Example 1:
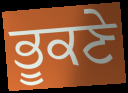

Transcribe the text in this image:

ਭੂਕਣੇ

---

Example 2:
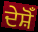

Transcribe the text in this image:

ਦੇਸ਼ੋਁ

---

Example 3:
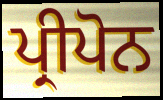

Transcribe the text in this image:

ਪ੍ਰੀਪੋਨ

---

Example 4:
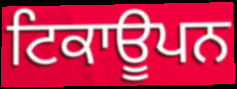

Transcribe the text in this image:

ਟਿਕਾਊਪਨ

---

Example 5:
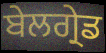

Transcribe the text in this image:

ਬੇਲਗ੍ਰੇਡ